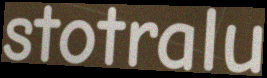
stotralu